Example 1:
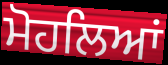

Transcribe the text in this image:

ਮੋਹਲਿਆਂ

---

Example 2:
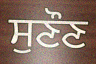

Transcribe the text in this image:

ਸੁਣੌਣ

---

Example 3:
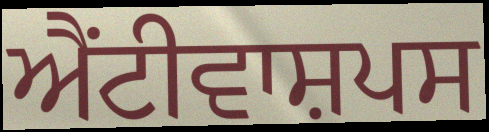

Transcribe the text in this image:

ਐਂਟੀਵਾਸ਼ਪਸ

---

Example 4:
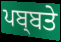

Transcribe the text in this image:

ਪਬ੍ਬਤੇ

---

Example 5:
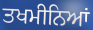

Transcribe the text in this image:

ਤਖਮੀਨਿਆਂ